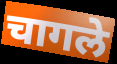
चागले